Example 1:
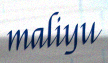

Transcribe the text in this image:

maliyu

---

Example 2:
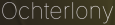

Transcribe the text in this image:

Ochterlony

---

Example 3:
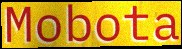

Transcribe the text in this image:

Mobota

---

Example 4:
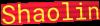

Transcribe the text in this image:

Shaolin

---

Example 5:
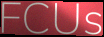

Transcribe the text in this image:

FCUs